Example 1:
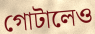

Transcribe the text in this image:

গোটালেও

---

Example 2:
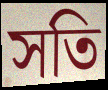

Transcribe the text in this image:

সতি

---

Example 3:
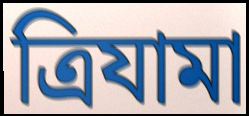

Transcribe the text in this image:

ত্রিযামা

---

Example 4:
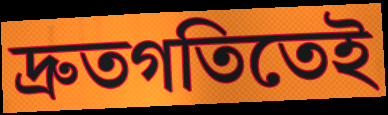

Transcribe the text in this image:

দ্রুতগতিতেই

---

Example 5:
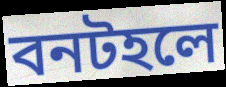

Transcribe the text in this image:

বনটহলে